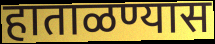
हाताळण्यास